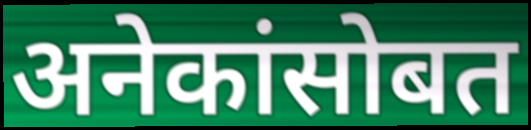
अनेकांसोबत